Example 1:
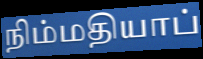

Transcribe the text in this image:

நிம்மதியாப்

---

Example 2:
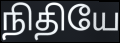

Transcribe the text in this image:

நிதியே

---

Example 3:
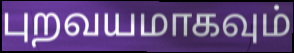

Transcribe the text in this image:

புறவயமாகவும்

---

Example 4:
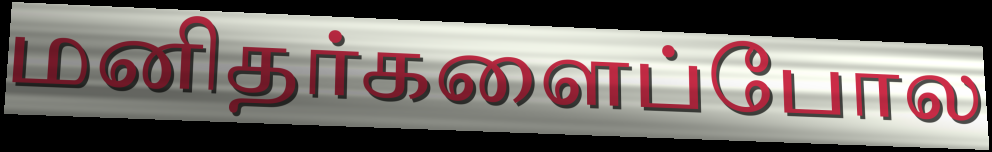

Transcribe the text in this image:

மனிதர்களைப்போல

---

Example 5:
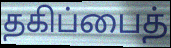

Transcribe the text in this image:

தகிப்பைத்